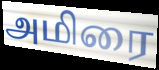
அமிரை